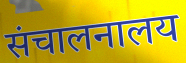
संचालनालय